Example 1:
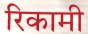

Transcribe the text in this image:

रिकामी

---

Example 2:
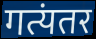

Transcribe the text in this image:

गत्यंतर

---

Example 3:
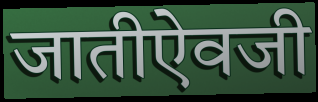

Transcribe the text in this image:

जातीऐवजी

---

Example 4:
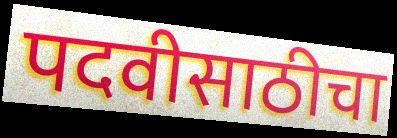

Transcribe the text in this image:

पदवीसाठीचा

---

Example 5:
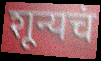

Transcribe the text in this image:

शून्यचं